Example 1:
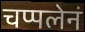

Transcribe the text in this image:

चप्पलेनं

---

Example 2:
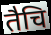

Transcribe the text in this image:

तैचि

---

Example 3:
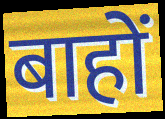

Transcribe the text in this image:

बाहों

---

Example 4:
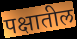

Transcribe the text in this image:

पक्षातील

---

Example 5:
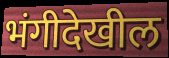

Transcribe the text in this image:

भंगीदेखील